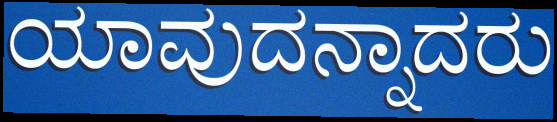
ಯಾವುದನ್ನಾದರು